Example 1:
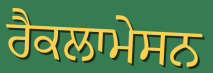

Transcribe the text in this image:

ਰੈਕਲਾਮੇਸਨ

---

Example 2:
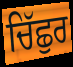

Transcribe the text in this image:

ਚਿੱਛੁਰ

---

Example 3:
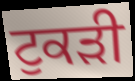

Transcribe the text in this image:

ਟੁਕਡ਼ੀ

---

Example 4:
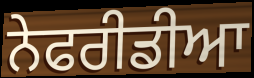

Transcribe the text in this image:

ਨੇਫਰੀਡੀਆ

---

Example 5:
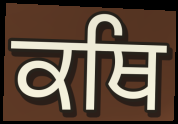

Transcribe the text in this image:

ਕਥਿ